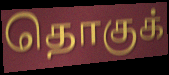
தொகுக்